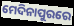
ମେଦିନାପୁରରେ